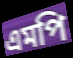
এমপি